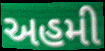
અહમી